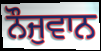
ਨੌਜੁਵਾਨ